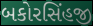
બકોરસિંહજી